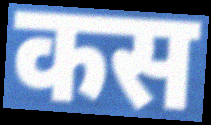
कस